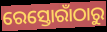
ରେସ୍ତୋରାଁଠାରୁ